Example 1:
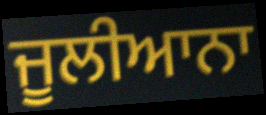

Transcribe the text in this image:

ਜੂਲੀਆਨਾ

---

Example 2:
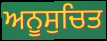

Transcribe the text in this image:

ਅਨੂਸੁਚਿਤ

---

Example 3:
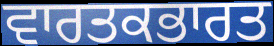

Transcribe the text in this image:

ਵਾਰਤਕਭਾਰਤ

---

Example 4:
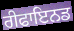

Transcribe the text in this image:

ਰੀਫਾਇਨਡ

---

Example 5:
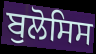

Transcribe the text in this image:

ਬੁਲੋਸਿਸ